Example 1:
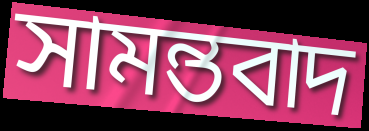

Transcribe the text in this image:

সামন্তবাদ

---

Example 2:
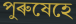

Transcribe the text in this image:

পুৰুষেহে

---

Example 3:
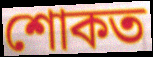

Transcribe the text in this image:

শোকত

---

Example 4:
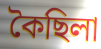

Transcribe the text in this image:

কৈছিলা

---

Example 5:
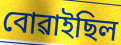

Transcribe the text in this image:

বোৱাইছিল